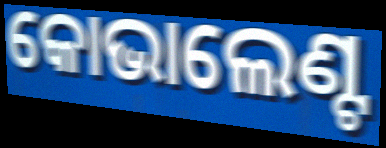
କୋଭାଲେଣ୍ଟ